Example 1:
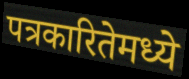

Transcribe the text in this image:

पत्रकारितेमध्ये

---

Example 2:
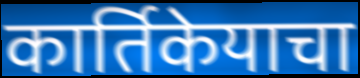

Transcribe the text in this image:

कार्तिकेयाचा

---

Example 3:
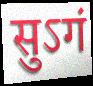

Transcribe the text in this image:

सुऽगं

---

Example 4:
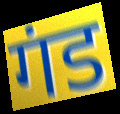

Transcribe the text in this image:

गंड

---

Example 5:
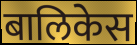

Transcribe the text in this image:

बालिकेस